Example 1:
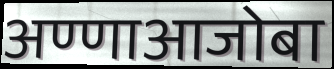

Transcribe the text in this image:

अण्णाआजोबा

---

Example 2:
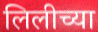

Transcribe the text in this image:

लिलीच्या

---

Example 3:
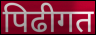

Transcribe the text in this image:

पिढीगत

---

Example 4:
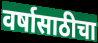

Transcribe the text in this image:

वर्षासाठीचा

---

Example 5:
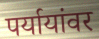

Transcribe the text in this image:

पर्यायांवर